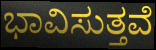
ಭಾವಿಸುತ್ತವೆ